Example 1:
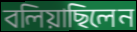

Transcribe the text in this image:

বলিয়াছিলেন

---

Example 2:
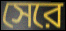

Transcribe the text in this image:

সেরে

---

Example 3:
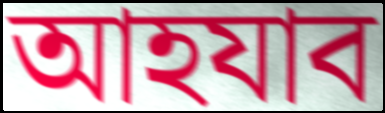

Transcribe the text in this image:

আহযাব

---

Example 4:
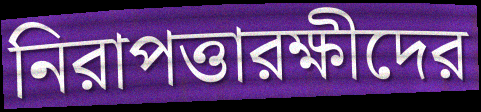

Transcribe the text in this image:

নিরাপত্তারক্ষীদের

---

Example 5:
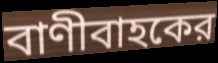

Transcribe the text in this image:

বাণীবাহকের